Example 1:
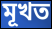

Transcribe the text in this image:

মূখত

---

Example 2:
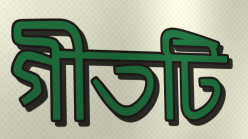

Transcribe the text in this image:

গীতটি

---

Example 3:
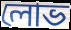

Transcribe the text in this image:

লোভ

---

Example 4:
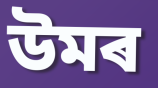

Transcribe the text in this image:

উমৰ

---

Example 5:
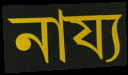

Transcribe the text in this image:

নায্য